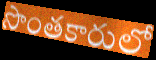
సొంతకారులో